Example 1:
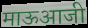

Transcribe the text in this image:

माऊआजी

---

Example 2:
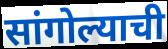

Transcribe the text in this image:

सांगोल्याची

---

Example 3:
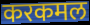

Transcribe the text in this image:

करकमल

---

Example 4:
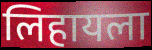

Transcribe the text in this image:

लिहायला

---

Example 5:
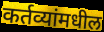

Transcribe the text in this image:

कर्तव्यांमधील